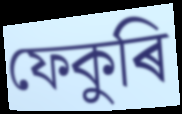
ফেকুৰি